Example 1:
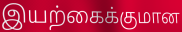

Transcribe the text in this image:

இயற்கைக்குமான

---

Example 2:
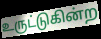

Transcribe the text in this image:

உருட்டுகின்ற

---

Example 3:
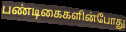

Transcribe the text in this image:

பண்டிகைகளின்போது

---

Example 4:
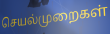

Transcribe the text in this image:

செயல்முறைகள்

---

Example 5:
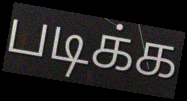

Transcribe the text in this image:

படிக்க